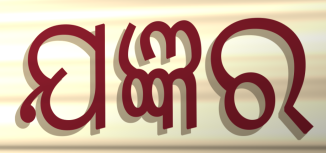
ଯଜ୍ଞର